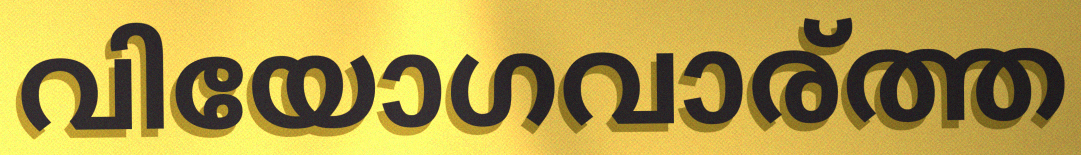
വിയോഗവാര്ത്ത